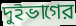
দুইভাগের